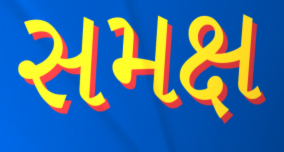
સમક્ષ